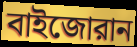
বাইজোরান